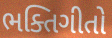
ભક્તિગીતો